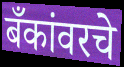
बँकांवरचे